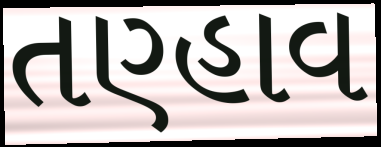
તણ્હાવ